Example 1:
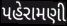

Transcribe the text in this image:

પહેરામણી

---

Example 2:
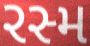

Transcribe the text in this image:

રસ્મ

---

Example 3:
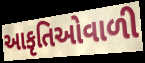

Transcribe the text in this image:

આકૃતિઓવાળી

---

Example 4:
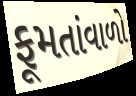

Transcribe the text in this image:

ફૂમતાંવાળો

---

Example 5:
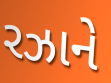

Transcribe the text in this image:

રઝાને